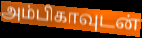
அம்பிகாவுடன்